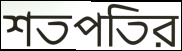
শতপতির